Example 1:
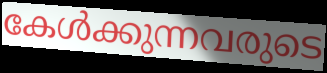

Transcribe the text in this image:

കേൾക്കുന്നവരുടെ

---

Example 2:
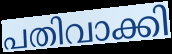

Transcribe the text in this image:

പതിവാക്കി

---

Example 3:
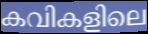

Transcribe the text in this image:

കവികളിലെ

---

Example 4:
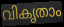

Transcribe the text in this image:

വികൃതാം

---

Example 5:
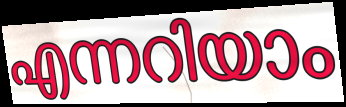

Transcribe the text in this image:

എന്നറിയാം